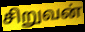
சிறுவன்